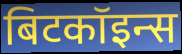
बिटकॉइन्स